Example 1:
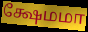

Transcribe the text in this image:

க்ஷேமமா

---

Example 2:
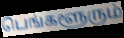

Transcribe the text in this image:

பெங்களூரும்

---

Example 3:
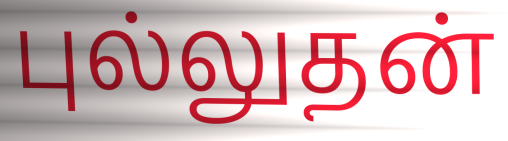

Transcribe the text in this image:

புல்லுதன்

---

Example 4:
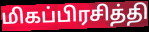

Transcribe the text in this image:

மிகப்பிரசித்தி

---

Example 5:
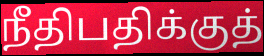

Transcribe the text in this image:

நீதிபதிக்குத்